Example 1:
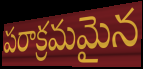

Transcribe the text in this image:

పరాక్రమమైన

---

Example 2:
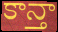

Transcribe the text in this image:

కాన్తా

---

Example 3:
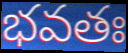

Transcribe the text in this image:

భవతః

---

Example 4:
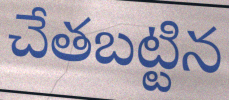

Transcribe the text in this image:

చేతబట్టిన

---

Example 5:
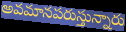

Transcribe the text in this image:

అవమానపరుస్తున్నారు